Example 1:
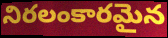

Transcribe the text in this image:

నిరలంకారమైన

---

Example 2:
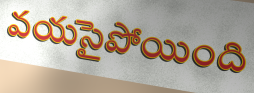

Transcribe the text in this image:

వయసైపోయింది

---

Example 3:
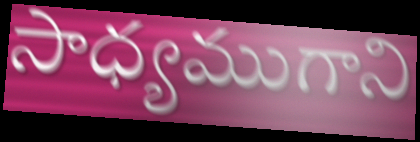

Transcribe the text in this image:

సాధ్యముగాని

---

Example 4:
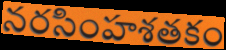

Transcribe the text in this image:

నరసింహశతకం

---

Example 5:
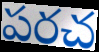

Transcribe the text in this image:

పరచ